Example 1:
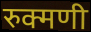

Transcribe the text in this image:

रुक्मणी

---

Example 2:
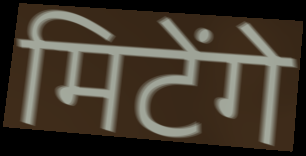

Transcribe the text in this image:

मिटेंगे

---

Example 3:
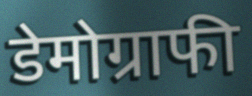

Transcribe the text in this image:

डेमोग्राफी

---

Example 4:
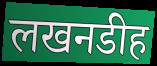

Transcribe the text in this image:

लखनडीह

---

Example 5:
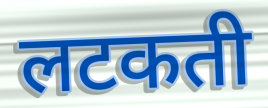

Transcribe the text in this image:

लटकती